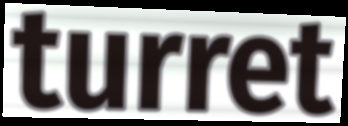
turret